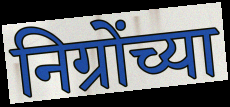
निग्रोंच्या